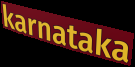
karnataka